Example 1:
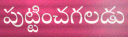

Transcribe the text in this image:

పుట్టించగలడు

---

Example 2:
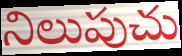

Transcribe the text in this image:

నిలుపుచు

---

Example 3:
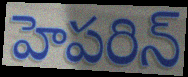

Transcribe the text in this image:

హెపరిన్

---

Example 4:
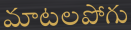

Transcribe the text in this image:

మాటలపోగు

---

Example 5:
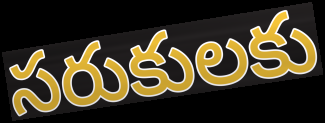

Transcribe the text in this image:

సరుకులకు